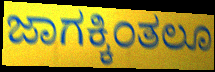
ಜಾಗಕ್ಕಿಂತಲೂ